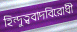
হিন্দুত্ববাদবিরোধী